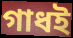
গাধই